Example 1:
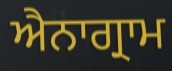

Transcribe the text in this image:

ਐਨਾਗ੍ਰਾਮ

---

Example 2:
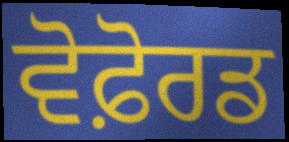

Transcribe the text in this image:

ਵੋਫ਼ੋਰਡ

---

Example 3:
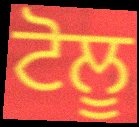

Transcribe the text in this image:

ਟੋਲੂ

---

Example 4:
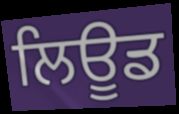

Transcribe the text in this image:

ਲਿਊਡ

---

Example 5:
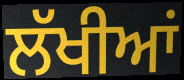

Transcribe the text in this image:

ਲੱਖੀਆਂ